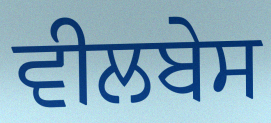
ਵੀਲਬੇਸ